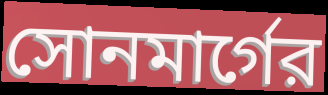
সোনমার্গের